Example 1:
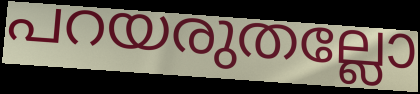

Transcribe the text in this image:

പറയരുതല്ലോ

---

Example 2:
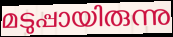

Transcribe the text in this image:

മടുപ്പായിരുന്നു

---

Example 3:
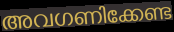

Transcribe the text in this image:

അവഗണിക്കേണ്ട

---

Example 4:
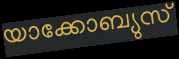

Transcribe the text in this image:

യാക്കോബ്യുസ്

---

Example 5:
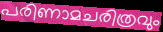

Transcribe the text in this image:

പരിണാമചരിത്രവും